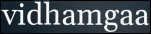
vidhamgaa